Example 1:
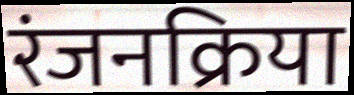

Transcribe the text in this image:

रंजनक्रिया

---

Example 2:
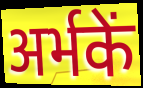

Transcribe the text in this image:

अर्भकें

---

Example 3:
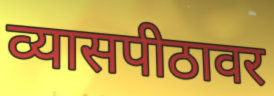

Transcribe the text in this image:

व्यासपीठावर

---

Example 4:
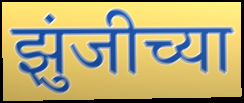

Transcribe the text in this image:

झुंजीच्या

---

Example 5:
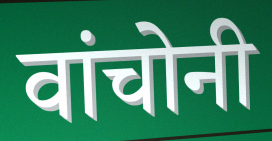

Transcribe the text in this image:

वांचोनी